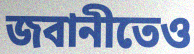
জবানীতেও